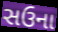
સઉના